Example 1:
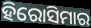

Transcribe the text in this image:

ହିରୋସିମାର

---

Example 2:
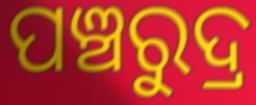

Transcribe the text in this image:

ପଞ୍ଚରୁଦ୍ର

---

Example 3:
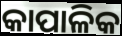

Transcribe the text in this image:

କାପାଳିକ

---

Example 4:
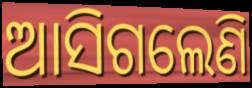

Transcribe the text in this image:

ଆସିଗଲେଣି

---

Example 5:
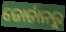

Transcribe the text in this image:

ଜୋର୍ଡାନରୁ